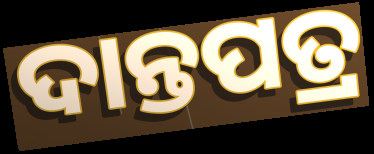
ଦାନ୍ତପତ୍ର